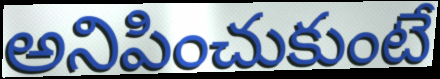
అనిపించుకుంటే